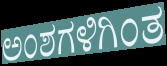
ಅಂಶಗಳಿಗಿಂತ